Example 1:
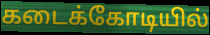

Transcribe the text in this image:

கடைக்கோடியில்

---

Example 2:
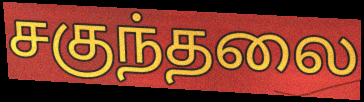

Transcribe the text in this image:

சகுந்தலை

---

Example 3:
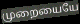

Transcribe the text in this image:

முறையையே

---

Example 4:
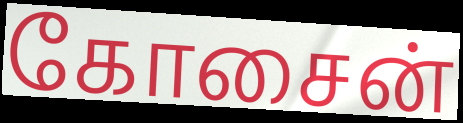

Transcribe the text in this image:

கோசைன்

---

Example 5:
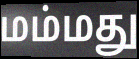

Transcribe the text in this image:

மம்மது